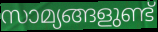
സാമ്യങ്ങളുണ്ട്